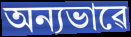
অন্যভাৱে